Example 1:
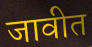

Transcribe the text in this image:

जावीत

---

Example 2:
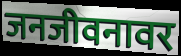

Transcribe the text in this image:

जनजीवनावर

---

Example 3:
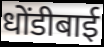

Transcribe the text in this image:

धोंडीबाई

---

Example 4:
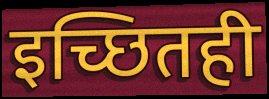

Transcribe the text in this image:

इच्छितही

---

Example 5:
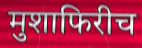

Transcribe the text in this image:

मुशाफिरीच